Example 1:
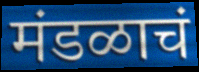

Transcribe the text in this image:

मंडळाचं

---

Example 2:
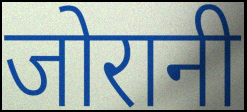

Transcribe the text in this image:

जोरानी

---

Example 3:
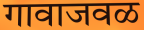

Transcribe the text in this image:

गावाजवळ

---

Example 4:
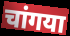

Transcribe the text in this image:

चांगया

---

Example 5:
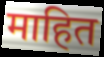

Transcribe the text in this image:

माहित